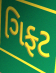
ગિફ્ટ